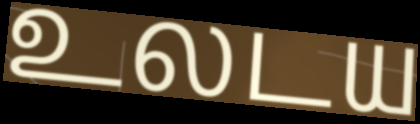
உலடய